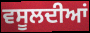
ਵਸੂਲਦੀਆਂ